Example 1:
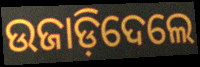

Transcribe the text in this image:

ଉଜାଡ଼ିଦେଲେ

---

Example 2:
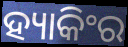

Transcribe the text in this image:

ହ୍ୟାକିଂର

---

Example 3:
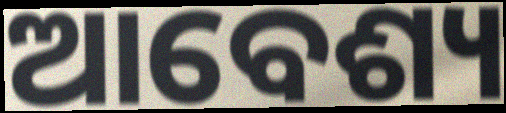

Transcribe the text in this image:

ଆବେଶ୍ୟ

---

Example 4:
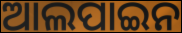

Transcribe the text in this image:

ଆଲପାଇନ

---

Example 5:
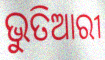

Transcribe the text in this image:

ଭୁତିଆରୀ